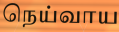
நெய்வாய